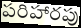
పరిహారపు